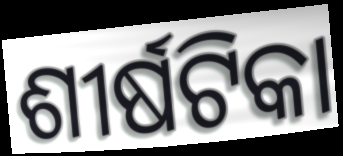
ଶୀର୍ଷଟିକା